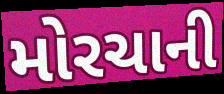
મોરચાની